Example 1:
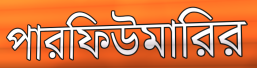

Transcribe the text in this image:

পারফিউমারির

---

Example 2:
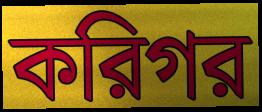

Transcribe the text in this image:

করিগর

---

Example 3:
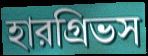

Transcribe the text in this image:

হারগ্রিভস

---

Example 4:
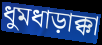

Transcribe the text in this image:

ধুমধাড়াক্কা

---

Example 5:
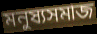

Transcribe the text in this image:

মনুষ্যসমাজ